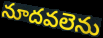
నూదవలెను